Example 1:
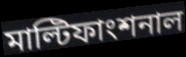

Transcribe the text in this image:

মাল্টিফাংশনাল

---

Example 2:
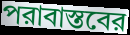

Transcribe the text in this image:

পরাবাস্তবের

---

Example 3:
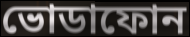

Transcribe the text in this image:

ভোডাফোন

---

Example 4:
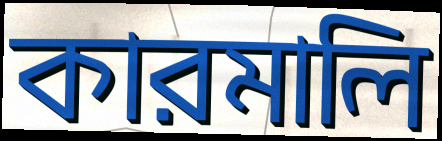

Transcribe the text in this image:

কারমালি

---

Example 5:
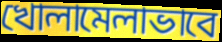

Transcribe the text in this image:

খোলামেলাভাবে